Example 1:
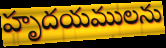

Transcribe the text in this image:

హృదయములను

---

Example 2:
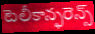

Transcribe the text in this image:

టెలీకాన్ఫరెన్స్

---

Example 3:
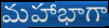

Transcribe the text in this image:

మహాభాగా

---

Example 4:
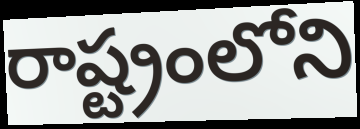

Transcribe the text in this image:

రాష్ట్రంలోని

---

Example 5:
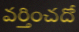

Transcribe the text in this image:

వర్తించదో